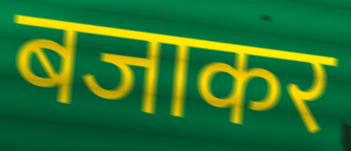
बजाकर